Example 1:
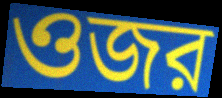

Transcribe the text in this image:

ওজর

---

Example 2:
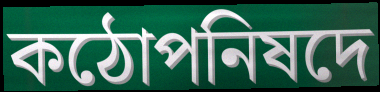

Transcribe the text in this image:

কঠোপনিষদে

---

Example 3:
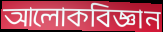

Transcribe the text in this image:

আলোকবিজ্ঞান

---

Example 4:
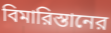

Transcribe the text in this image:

বিমারিস্তানের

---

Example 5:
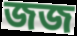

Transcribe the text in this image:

জজ